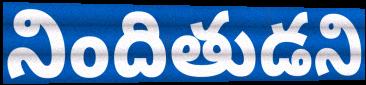
నిందితుడని